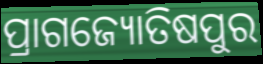
ପ୍ରାଗଜ୍ୟୋତିଷପୁର